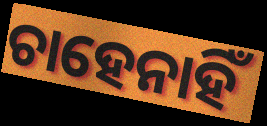
ଚାହେନାହିଁ